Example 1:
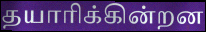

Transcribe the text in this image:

தயாரிக்கின்றன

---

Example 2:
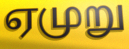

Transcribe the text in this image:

ஏமுறு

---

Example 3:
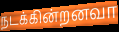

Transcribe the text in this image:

நடக்கின்றனவா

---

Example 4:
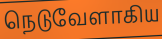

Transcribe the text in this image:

நெடுவேளாகிய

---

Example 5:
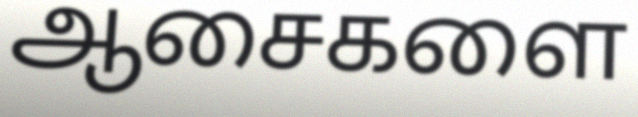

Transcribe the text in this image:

ஆசைகளை